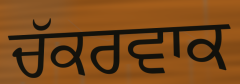
ਚੱਕਰਵਾਕ